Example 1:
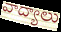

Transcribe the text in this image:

వాద్యాలు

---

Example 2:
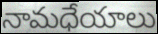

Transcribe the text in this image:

నామధేయాలు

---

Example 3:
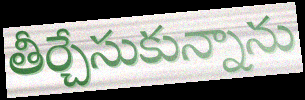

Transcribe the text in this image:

తీర్చేసుకున్నాను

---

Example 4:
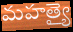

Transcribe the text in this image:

మహత్యై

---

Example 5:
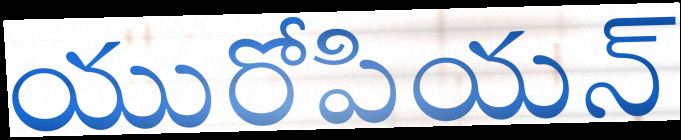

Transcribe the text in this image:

యురోపియన్